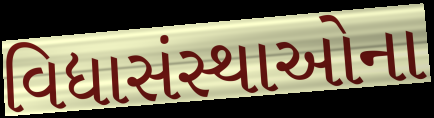
વિદ્યાસંસ્થાઓના